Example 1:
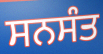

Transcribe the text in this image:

ਸਨਸੰਤ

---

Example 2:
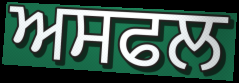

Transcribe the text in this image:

ਅਸਫਲ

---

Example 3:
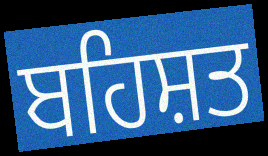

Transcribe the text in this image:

ਬਹਿਸ਼ਤ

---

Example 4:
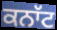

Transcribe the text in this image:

ਕਨਾੱਟ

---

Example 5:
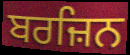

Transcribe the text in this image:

ਬਰਜ਼ਿਨ